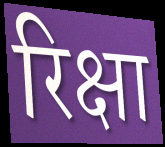
रिक्षा